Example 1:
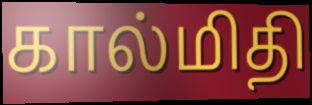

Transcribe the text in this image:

கால்மிதி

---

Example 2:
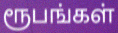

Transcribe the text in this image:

ரூபங்கள்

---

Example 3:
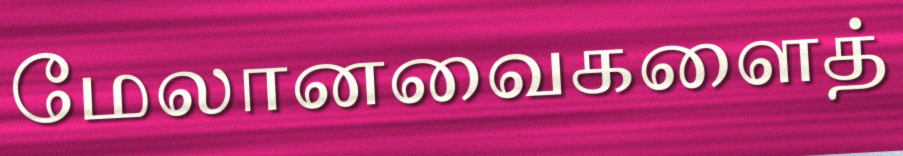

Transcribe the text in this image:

மேலானவைகளைத்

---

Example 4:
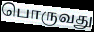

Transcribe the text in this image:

பொருவது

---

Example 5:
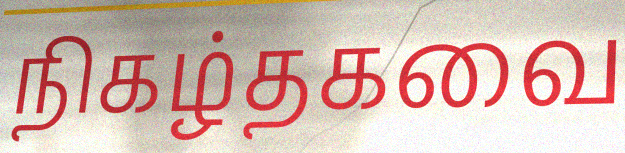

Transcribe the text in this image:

நிகழ்தகவை